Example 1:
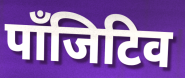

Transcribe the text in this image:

पाँजिटिव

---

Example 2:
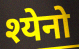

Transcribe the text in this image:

श्येनो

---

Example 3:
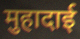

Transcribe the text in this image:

मुहादाई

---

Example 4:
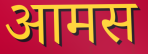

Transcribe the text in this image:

आमस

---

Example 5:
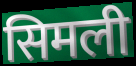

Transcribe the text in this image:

सिमली